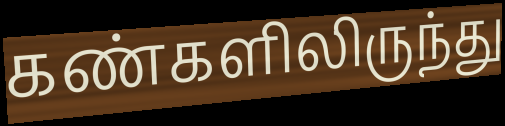
கண்களிலிருந்து